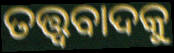
ତତ୍ତ୍ୱବାଦକୁ